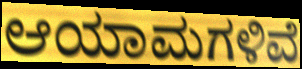
ಆಯಾಮಗಳಿವೆ